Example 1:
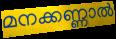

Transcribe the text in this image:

മനക്കണ്ണാൽ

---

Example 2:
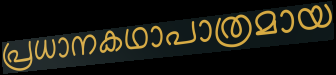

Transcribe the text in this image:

പ്രധാനകഥാപാത്രമായ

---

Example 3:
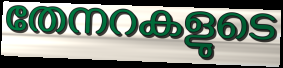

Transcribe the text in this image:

തേനറകളുടെ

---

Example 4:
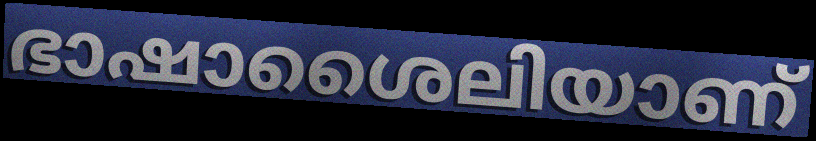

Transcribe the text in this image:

ഭാഷാശൈലിയാണ്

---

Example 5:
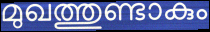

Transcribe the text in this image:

മുഖത്തുണ്ടാകും